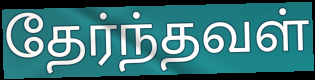
தேர்ந்தவள்